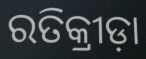
ରତିକ୍ରୀଡ଼ା